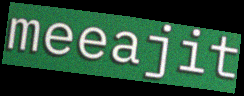
meeajit